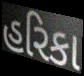
હરિકા